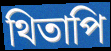
থিতাপি